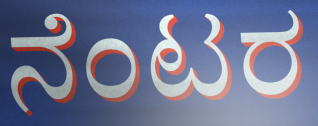
ನೆಂಟರ